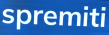
spremiti